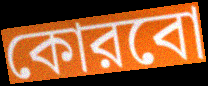
কোরবো